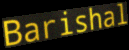
Barishal